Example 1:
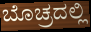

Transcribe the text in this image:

ಬೊಚ್ರದಲ್ಲಿ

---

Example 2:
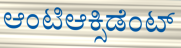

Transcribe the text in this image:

ಆಂಟಿಆಕ್ಸಿಡೆಂಟ್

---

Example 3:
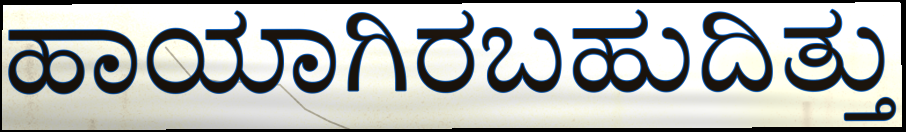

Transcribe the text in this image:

ಹಾಯಾಗಿರಬಹುದಿತ್ತು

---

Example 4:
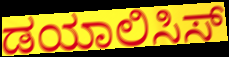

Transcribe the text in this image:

ಡಯಾಲಿಸಿಸ್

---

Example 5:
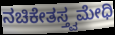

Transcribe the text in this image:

ನಚಿಕೇತಸ್ತ್ವಮೇಧಿ